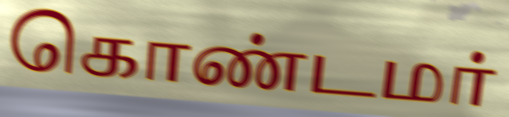
கொண்டமர்